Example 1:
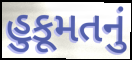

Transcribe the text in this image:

હુકૂમતનું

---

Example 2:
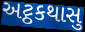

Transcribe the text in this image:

અટ્ઠકથાસુ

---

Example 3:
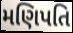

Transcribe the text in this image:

મણિપતિ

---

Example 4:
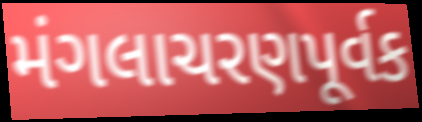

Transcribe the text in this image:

મંગલાચરણપૂર્વક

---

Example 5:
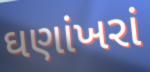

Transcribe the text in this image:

ઘણાંખરાં